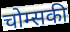
चोम्सकी